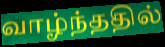
வாழ்ந்ததில்